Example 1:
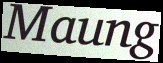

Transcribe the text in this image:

Maung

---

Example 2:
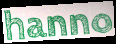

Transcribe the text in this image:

hanno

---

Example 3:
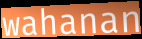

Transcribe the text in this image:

wahanan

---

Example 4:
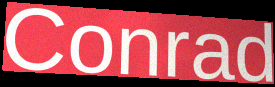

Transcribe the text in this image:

Conrad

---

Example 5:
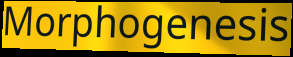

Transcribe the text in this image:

Morphogenesis